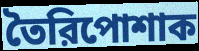
তৈরিপোশাক